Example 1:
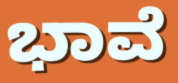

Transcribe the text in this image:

ಭಾವೆ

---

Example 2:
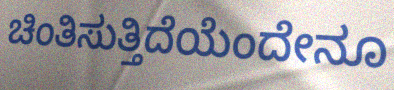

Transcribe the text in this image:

ಚಿಂತಿಸುತ್ತಿದೆಯೆಂದೇನೂ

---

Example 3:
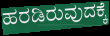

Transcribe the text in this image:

ಹರಡಿರುವುದಕ್ಕೆ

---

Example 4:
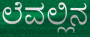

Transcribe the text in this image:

ಲೆವಲ್ಲಿನ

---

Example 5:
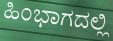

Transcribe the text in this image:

ಹಿಂಭಾಗದಲ್ಲಿ